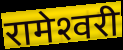
रामेश्वरी